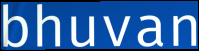
bhuvan